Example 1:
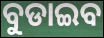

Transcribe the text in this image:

ବୁଡାଇବ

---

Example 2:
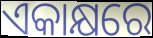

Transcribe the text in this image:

ଏକାକ୍ଷରେ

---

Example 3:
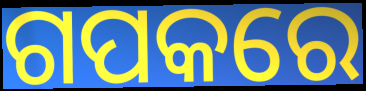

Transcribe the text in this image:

ଗପକରେ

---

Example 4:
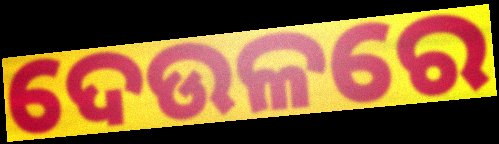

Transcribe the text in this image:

ଦେଉଳରେ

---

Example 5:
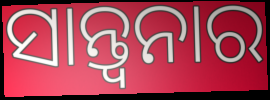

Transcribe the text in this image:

ସାନ୍ତ୍ବନାର